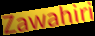
Zawahiri